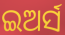
ଇଅର୍ସ